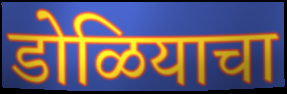
डोळियाचा